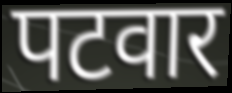
पटवार